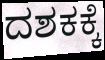
ದಶಕಕ್ಕೆ